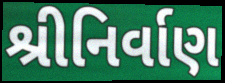
શ્રીનિર્વાણ